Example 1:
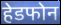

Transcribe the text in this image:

हेडफोन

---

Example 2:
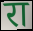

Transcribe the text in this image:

रा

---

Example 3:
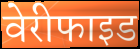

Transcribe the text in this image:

वेरीफाइड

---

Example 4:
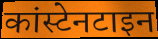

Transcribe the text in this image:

कांस्टेनटाइन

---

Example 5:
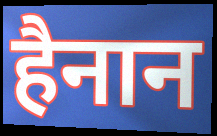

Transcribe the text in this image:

हैनान